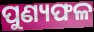
ପୁଣ୍ୟଫଳ